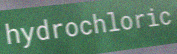
hydrochloric